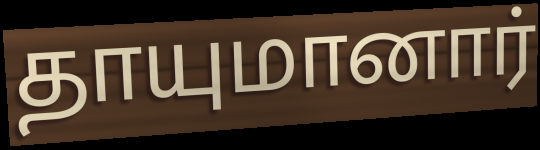
தாயுமானார்